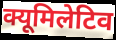
क्यूमिलेटिव